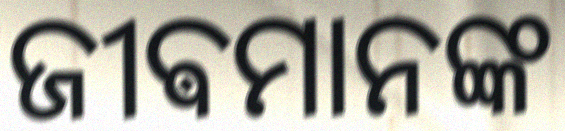
ଜୀଵମାନଙ୍କ